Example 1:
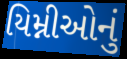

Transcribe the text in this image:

યિમ્નીઓનું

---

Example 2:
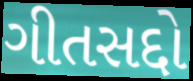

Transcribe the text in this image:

ગીતસદ્દો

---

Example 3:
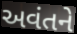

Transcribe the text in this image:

અવંતને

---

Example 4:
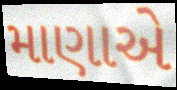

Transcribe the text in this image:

માણાએ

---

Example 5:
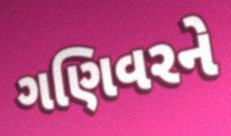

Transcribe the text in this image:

ગણિવરને